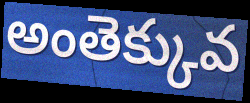
అంతెక్కువ